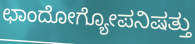
ಛಾಂದೋಗ್ಯೋಪನಿಷತ್ತು